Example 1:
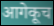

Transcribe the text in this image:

आगेकूच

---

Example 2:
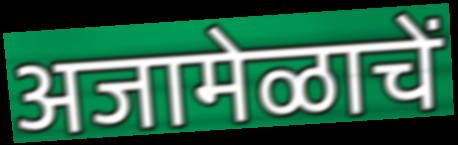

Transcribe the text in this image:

अजामेळाचें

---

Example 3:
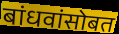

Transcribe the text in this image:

बांधवांसोबत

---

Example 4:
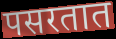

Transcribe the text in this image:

पसरतात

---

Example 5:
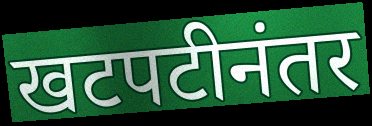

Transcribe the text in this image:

खटपटीनंतर